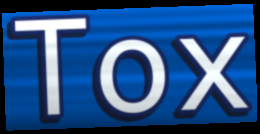
Tox